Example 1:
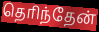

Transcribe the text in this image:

தெரிந்தேன்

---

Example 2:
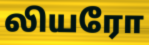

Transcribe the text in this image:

லியரோ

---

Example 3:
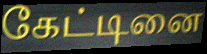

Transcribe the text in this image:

கேட்டினை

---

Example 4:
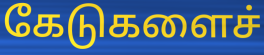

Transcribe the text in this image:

கேடுகளைச்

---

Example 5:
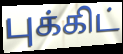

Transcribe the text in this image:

புக்கிட்